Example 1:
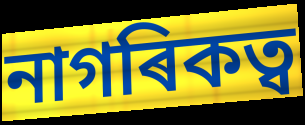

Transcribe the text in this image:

নাগৰিকত্ব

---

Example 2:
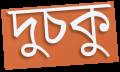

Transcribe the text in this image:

দুচকু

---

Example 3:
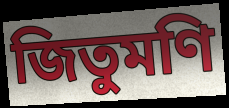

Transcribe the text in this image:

জিতুমণি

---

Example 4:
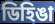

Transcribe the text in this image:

ডিহিঙা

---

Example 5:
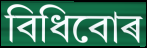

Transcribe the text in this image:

বিধিবোৰ